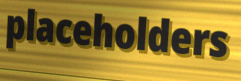
placeholders